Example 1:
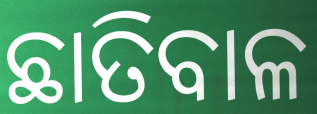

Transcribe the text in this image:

ଛାତିବାଳ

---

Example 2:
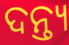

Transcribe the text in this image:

ଦନ୍ତ୍ଯ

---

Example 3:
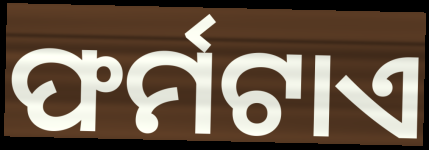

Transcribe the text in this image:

ଫର୍ମଟାଏ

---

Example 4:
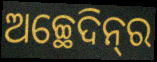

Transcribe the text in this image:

ଅଚ୍ଛେଦିନ୍‌ର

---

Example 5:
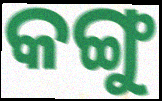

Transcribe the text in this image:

କଙ୍ଗୁ